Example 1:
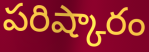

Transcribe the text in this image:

పరిష్కారం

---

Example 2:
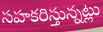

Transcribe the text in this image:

సహకరిస్తున్నట్లు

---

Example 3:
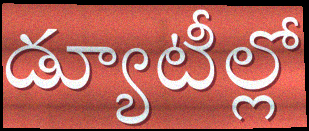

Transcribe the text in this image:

డ్యూటీల్లో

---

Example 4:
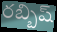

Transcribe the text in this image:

రబ్బిష్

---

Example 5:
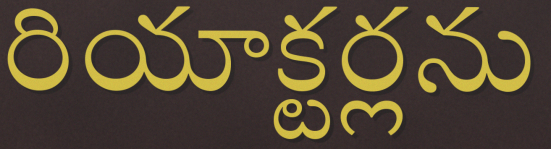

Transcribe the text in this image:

రియాక్టర్లను